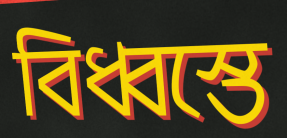
বিধ্বস্তে